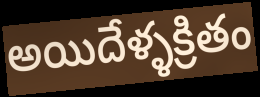
అయిదేళ్ళక్రితం